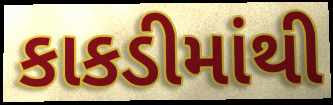
કાકડીમાંથી